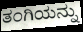
ತಂಗಿಯನ್ನು